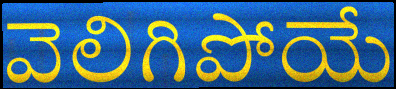
వెలిగిపోయే